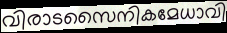
വിരാടസൈനികമേധാവി